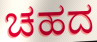
ಚಹದ